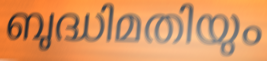
ബുദ്ധിമതിയും